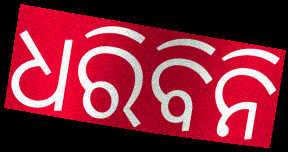
ଧରିବିନି